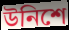
উনিশে